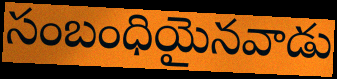
సంబంధియైనవాడు